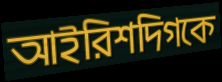
আইরিশদিগকে